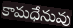
కామధేనువు